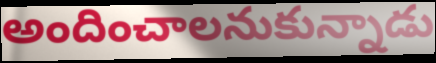
అందించాలనుకున్నాడు